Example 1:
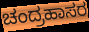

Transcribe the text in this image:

ಚಂದ್ರಹಾಸರ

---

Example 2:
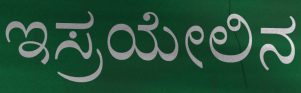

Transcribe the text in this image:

ಇಸ್ರಯೇಲಿನ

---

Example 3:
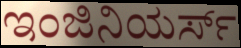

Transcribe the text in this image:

ಇಂಜಿನಿಯರ್ಸ್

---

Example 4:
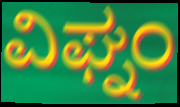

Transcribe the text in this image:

ವಿಘ್ನಂ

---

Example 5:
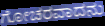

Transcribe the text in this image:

ಗೋಚರವಾದನು